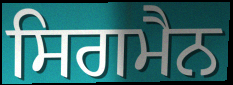
ਸਿਗਮੈਨ